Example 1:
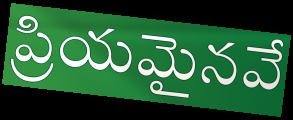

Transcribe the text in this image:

ప్రియమైనవే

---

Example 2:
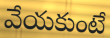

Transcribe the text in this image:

వేయకుంటే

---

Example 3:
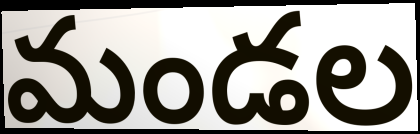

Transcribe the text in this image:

మండల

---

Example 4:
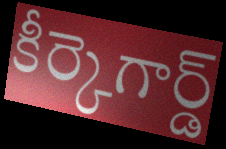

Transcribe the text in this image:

కీర్కెగార్డ్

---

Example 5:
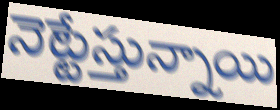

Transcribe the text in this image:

నెట్టేస్తున్నాయి